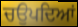
ਚਉਪਦਿਆਂ